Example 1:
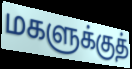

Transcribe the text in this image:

மகளுக்குத்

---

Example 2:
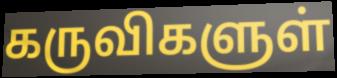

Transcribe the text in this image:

கருவிகளுள்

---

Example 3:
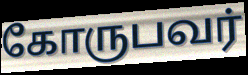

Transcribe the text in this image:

கோருபவர்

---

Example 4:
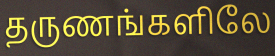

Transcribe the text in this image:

தருணங்களிலே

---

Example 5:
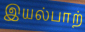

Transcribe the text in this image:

இயல்பாற்